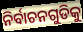
ନିର୍ବାଚନଗୁଡିକୁ